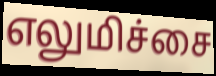
எலுமிச்சை